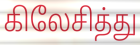
கிலேசித்து